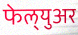
फेल्युअर